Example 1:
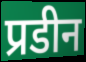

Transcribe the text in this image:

प्रडीन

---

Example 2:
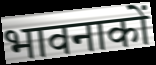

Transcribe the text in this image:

भावनाकों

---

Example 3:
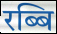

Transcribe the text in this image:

रब्बि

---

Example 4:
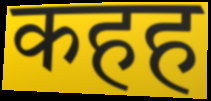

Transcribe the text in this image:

कहह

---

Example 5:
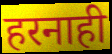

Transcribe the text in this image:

हरनाही